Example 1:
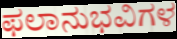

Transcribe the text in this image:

ಫಲಾನುಭವಿಗಳ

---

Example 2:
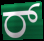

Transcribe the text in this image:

ರ್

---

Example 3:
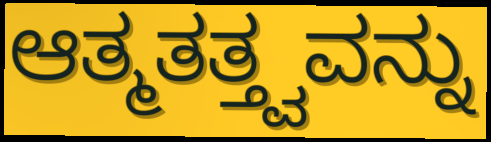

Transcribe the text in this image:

ಆತ್ಮತತ್ತ್ವವನ್ನು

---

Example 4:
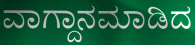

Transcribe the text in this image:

ವಾಗ್ದಾನಮಾಡಿದ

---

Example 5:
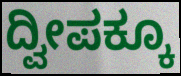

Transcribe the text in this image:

ದ್ವೀಪಕ್ಕೂ